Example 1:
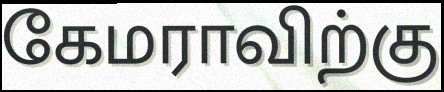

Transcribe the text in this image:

கேமராவிற்கு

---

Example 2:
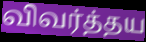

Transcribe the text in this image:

விவர்த்தய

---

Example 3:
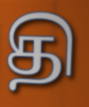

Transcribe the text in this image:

தி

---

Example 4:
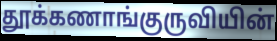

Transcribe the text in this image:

தூக்கணாங்குருவியின்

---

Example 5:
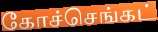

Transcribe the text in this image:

கோச்செங்கட்